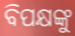
ବିପକ୍ଷଙ୍କୁ